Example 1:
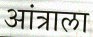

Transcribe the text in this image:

आंत्राला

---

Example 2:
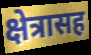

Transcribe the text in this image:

क्षेत्रासह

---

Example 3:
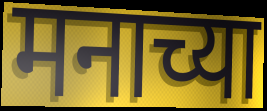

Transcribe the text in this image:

मनाच्या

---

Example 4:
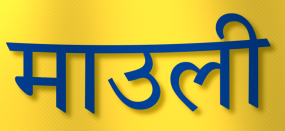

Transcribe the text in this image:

माउली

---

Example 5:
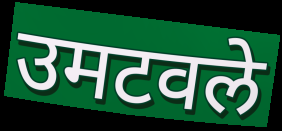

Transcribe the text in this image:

उमटवले